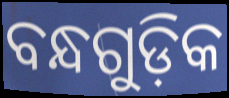
ବନ୍ଧଗୁଡ଼ିକ